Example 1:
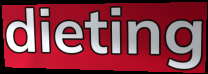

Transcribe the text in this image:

dieting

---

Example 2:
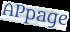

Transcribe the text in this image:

APpage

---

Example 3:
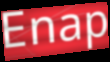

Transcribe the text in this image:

Enap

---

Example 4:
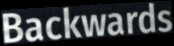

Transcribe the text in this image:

Backwards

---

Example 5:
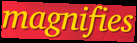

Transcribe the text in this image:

magnifies